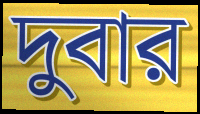
দুবার